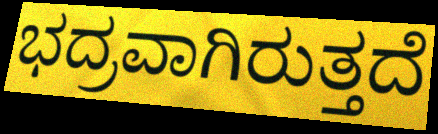
ಭದ್ರವಾಗಿರುತ್ತದೆ